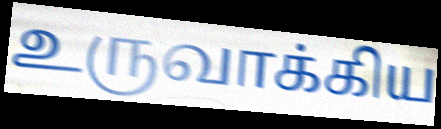
உருவாக்கிய